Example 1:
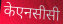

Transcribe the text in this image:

केएनसीसी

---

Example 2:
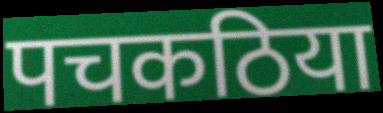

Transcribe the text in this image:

पचकठिया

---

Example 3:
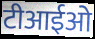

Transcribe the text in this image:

टीआईओ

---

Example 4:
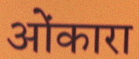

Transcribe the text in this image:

ओंकारा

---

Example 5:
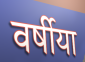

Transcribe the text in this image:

वर्षीया